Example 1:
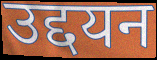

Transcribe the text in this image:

उद्दयन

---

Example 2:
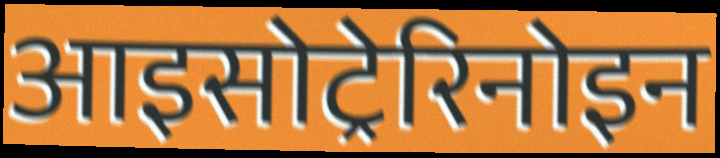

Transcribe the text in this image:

आइसोट्रेरिनोइन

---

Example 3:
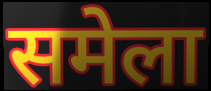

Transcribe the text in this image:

समेला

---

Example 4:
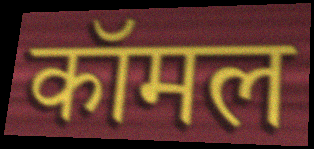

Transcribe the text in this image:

कॉमल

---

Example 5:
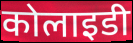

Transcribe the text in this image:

कोलाइडी